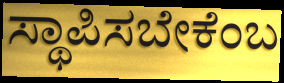
ಸ್ಥಾಪಿಸಬೇಕೆಂಬ